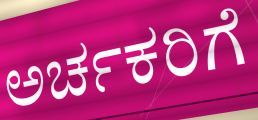
ಅರ್ಚಕರಿಗೆ